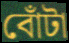
বোঁটা